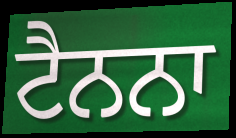
ਟੈਨਨਾ